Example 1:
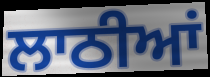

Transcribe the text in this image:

ਲਾਠੀਆਂ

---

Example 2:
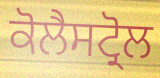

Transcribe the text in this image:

ਕੋਲੈਸਟ੍ਰੋਲ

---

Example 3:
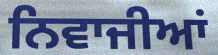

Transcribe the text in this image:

ਨਿਵਾਜੀਆਂ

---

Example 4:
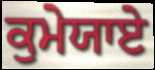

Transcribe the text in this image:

ਕੁਮੇਯਾਏ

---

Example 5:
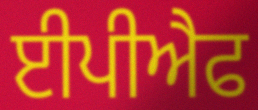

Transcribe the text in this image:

ਈਪੀਐਫ